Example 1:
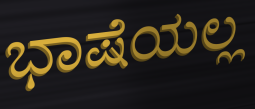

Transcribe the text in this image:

ಭಾಷೆಯಲ್ಲ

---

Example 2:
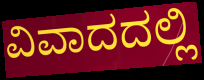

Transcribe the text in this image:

ವಿವಾದದಲ್ಲಿ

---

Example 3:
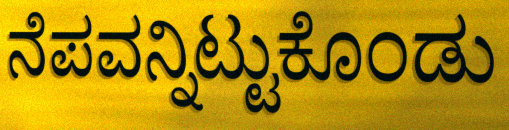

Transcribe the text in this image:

ನೆಪವನ್ನಿಟ್ಟುಕೊಂಡು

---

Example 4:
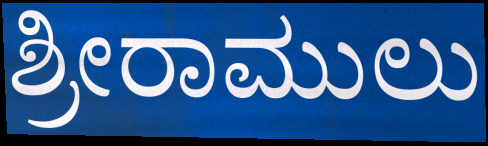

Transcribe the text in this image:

ಶ್ರೀರಾಮುಲು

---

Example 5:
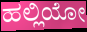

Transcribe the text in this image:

ಹಲ್ಲಿಯೋ